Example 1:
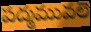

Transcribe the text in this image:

పద్మమువలె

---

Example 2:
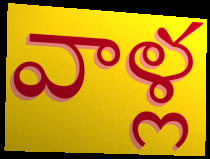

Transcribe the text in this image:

వాళ్ల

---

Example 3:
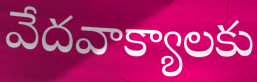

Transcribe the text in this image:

వేదవాక్యాలకు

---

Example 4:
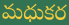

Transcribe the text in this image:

మధుకర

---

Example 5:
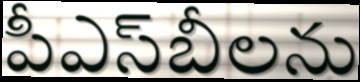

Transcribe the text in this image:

పీఎస్‌బీలను